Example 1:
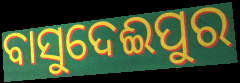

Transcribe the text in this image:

ବାସୁଦେଈପୁର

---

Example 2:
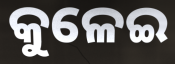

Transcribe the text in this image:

କୁଳେଇ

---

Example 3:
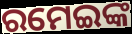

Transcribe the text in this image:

ରମେଇଙ୍କ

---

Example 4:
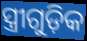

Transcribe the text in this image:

ସ୍ତ୍ରୀଗୁଡ଼ିକ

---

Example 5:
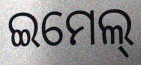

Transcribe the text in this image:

ଇମେଲ୍